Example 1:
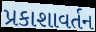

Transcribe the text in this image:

પ્રકાશાવર્તન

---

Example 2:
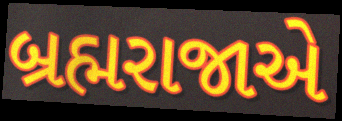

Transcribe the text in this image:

બ્રહ્મરાજાએ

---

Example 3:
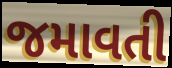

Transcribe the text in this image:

જમાવતી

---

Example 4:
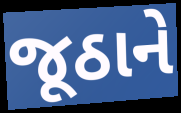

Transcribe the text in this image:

જૂઠાને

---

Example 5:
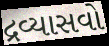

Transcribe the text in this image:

દ્રવ્યાસવો